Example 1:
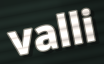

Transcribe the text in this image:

valli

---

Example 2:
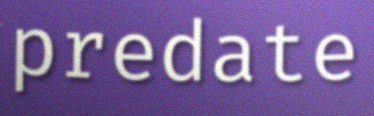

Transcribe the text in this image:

predate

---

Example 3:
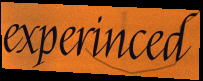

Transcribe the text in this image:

experinced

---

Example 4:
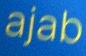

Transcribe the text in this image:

ajab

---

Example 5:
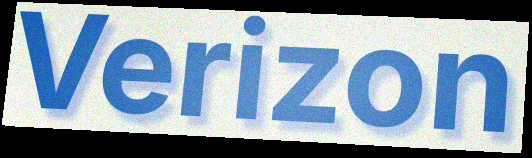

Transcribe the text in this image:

Verizon